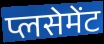
प्लसेमेंट